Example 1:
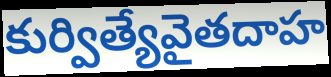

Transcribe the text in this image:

కుర్విత్యేవైతదాహ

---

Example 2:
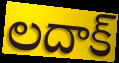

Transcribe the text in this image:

లదాక్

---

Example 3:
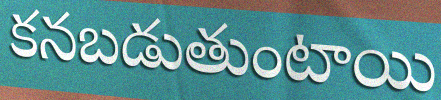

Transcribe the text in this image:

కనబడుతుంటాయి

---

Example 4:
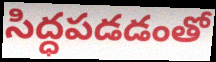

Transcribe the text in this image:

సిద్ధపడడంతో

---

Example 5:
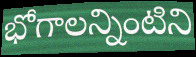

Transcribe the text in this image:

భోగాలన్నింటిని